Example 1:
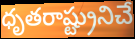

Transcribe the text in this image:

ధృతరాష్ట్రునిచే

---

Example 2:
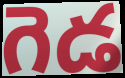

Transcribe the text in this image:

గెడ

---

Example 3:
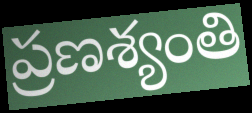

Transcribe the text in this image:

ప్రణశ్యంతి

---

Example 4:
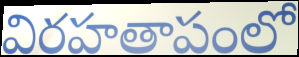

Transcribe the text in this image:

విరహతాపంలో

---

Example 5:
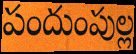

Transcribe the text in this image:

పందుంపుల్ల